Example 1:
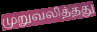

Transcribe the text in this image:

முறுவலித்தது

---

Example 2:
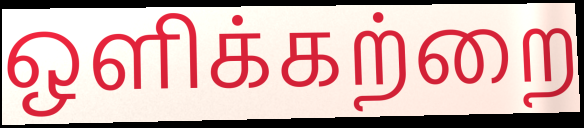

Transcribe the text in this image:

ஒளிக்கற்றை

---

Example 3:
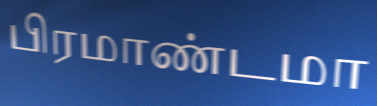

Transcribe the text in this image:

பிரமாண்டமா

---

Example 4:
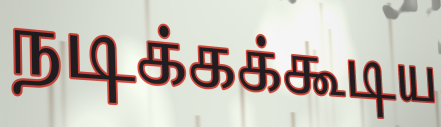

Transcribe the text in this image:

நடிக்கக்கூடிய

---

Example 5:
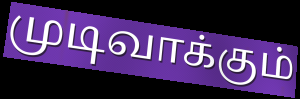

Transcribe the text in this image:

முடிவாக்கும்